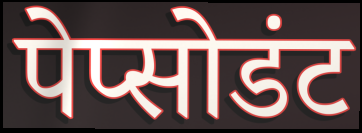
पेप्सोडंट